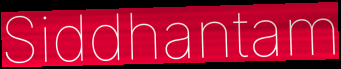
Siddhantam